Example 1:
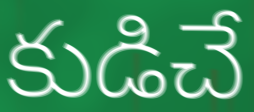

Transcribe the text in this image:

కుడిచే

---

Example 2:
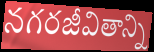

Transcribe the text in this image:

నగరజీవితాన్ని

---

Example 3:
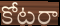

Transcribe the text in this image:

కోటరా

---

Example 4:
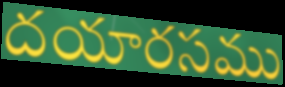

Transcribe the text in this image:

దయారసము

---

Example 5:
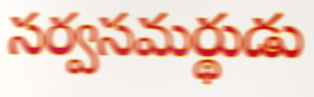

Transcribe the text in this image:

సర్వసమర్థుడు